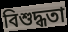
বিশুদ্ধতা